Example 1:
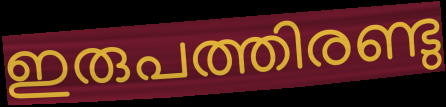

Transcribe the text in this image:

ഇരുപത്തിരണ്ടു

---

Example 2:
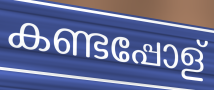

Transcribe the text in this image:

കണ്ടപ്പോള്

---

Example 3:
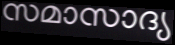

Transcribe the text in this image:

സമാസാദ്യ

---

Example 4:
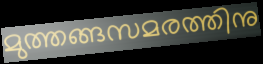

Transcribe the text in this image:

മുത്തങ്ങസമരത്തിനു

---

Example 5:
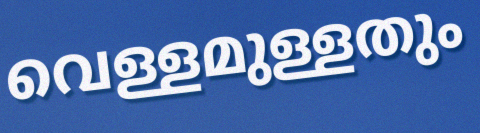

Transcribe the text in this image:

വെള്ളമുള്ളതും